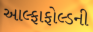
આલ્ફાફોલ્ડની